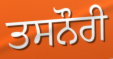
ਤਸਨੌਰੀ